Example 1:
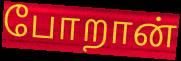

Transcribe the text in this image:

போறான்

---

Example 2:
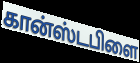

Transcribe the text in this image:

கான்ஸ்டபிளை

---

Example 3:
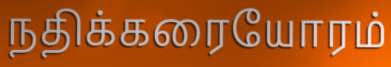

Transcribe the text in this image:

நதிக்கரையோரம்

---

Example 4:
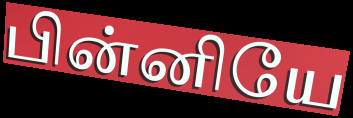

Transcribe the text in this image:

பின்னியே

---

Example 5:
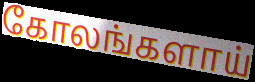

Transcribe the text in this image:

கோலங்களாய்